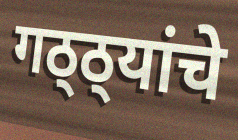
गठ्ठ्यांचे